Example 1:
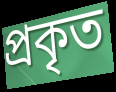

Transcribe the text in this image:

প্রকৃত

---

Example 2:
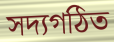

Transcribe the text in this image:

সদ্যগঠিত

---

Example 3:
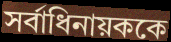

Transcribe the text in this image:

সর্বাধিনায়ককে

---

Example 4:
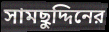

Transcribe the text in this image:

সামছুদ্দিনের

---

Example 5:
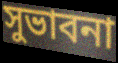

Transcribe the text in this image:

সুভাবনা